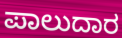
ಪಾಲುದಾರ